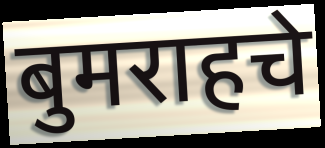
बुमराहचे